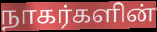
நாகர்களின்